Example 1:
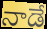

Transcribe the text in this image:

నాడే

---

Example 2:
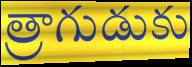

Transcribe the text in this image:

త్రాగుడుకు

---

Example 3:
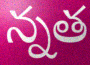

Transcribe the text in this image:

న్నత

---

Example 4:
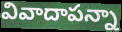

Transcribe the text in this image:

వివాదాపన్నా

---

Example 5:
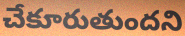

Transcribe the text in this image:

చేకూరుతుందని